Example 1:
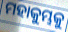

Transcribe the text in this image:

ମହାକୁମ୍ଭକୁ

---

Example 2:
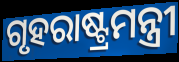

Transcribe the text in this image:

ଗୃହରାଷ୍ଟ୍ରମନ୍ତ୍ରୀ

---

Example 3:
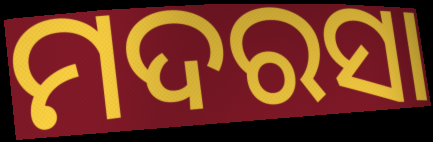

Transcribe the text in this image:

ମଦରସା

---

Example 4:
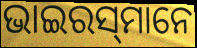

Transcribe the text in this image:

ଭାଇରସ୍‌ମାନେ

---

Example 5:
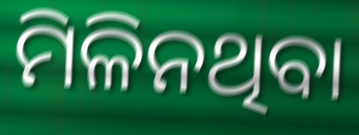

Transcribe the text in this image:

ମିଳିନଥିବା